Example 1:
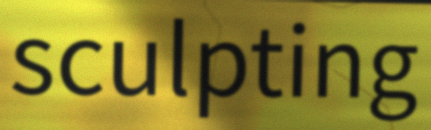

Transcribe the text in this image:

sculpting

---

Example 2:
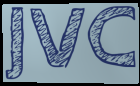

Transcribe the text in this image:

JVC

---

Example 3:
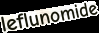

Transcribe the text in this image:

leflunomide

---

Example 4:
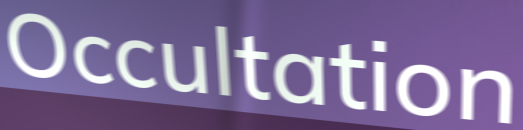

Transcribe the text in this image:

Occultation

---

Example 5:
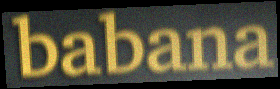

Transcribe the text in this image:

babana